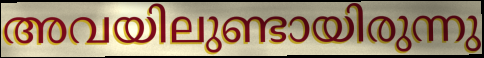
അവയിലുണ്ടായിരുന്നു